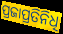
ପ୍ରଜାପ୍ରତିନିଧି